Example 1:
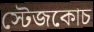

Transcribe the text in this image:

স্টেজকোচ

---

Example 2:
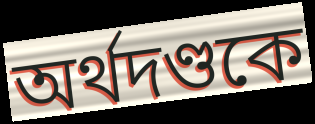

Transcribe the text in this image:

অর্থদণ্ডকে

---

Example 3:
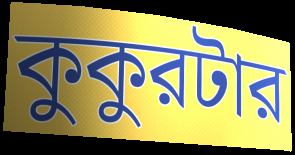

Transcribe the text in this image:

কুকুরটার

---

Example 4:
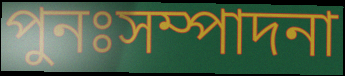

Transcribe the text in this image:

পুনঃসম্পাদনা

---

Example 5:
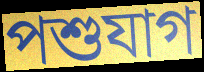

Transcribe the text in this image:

পশুযাগ